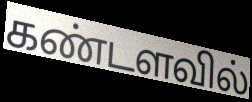
கண்டளவில்